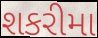
શકરીમા